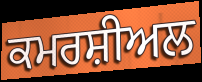
ਕਮਰਸ਼ੀਅਲ